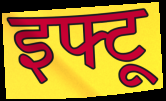
इफ्टू